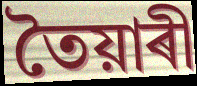
তৈয়াৰী